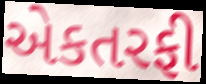
એકતરફી